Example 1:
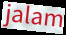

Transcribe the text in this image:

jalam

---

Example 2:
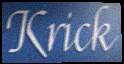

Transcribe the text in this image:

Krick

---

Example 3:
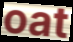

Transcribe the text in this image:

oat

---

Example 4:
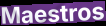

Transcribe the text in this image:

Maestros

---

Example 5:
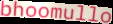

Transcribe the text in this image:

bhoomullo